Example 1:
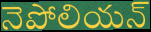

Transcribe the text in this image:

నెపోలియన్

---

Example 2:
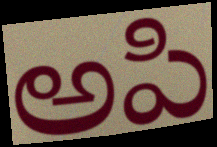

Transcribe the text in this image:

అపి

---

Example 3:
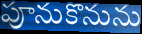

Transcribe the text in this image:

పూనుకొనును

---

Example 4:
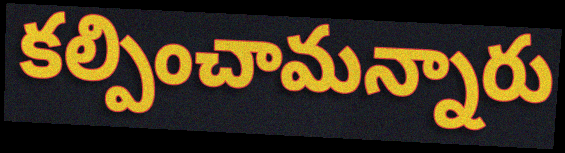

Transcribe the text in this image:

కల్పించామన్నారు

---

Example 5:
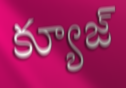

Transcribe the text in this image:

క్యూజ్